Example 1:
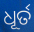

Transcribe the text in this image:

ଧୂର୍ତ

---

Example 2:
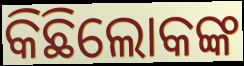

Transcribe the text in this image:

କିଛିଲୋକଙ୍କ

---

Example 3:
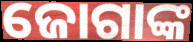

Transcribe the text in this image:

ଜୋଗାଙ୍କ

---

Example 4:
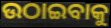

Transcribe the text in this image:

ଉଠାଇବାକୁ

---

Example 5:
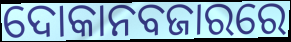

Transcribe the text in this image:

ଦୋକାନବଜାରରେ